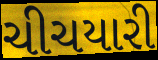
ચીચયારી